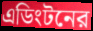
এডিংটনের